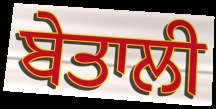
ਬੇਤਾਲੀ